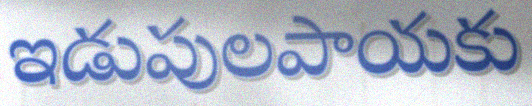
ఇడుపులపాయకు